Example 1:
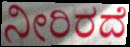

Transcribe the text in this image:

ನೀರಿರದೆ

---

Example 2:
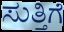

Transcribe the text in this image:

ಸುತ್ತಿಗೆ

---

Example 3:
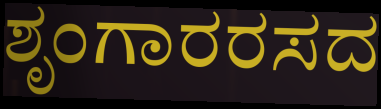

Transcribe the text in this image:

ಶೃಂಗಾರರಸದ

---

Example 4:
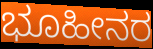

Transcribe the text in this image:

ಭೂಹೀನರ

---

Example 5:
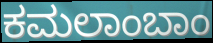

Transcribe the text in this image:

ಕಮಲಾಂಬಾಂ